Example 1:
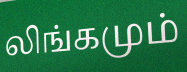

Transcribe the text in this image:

லிங்கமும்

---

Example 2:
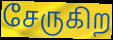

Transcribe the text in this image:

சேருகிற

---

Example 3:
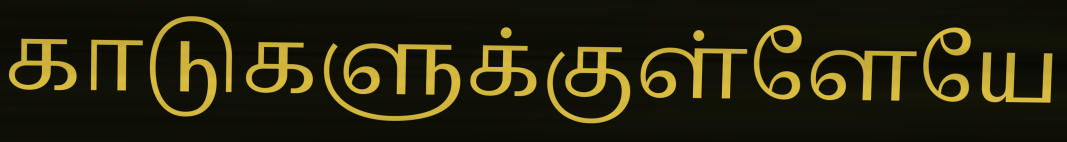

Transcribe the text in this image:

காடுகளுக்குள்ளேயே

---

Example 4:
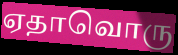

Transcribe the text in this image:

ஏதாவொரு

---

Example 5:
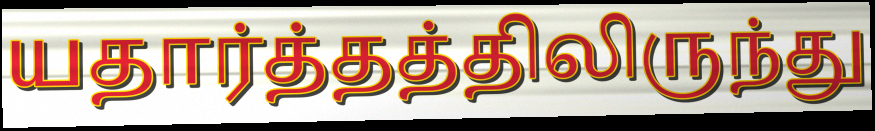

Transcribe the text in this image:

யதார்த்தத்திலிருந்து